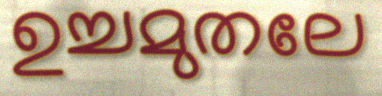
ഉച്ചമുതലേ